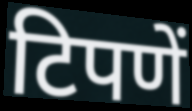
टिपणें